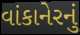
વાંકાનેરનું